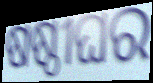
ଷଷ୍ଠୀଘର